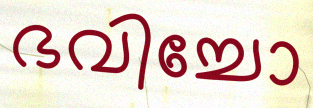
ഭവിച്ചോ